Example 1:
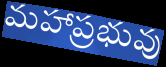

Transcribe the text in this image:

మహాప్రభువు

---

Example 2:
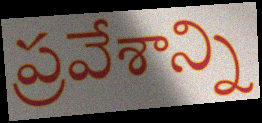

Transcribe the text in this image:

ప్రవేశాన్ని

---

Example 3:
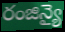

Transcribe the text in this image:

రంజిన్యై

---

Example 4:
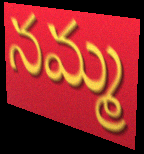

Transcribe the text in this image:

నమ్మ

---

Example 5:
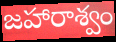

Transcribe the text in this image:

జహారాశ్వం